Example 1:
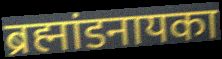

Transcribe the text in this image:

ब्रह्मांडनायका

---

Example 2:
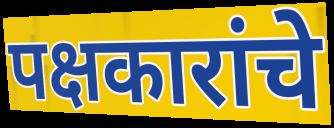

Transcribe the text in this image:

पक्षकारांचे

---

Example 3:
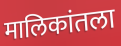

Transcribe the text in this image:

मालिकांतला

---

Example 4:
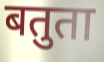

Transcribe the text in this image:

बतुता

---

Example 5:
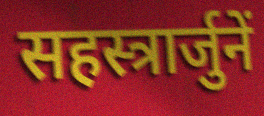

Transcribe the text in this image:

सहस्त्रार्जुनें